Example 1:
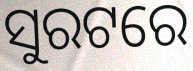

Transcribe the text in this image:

ସୁରଟରେ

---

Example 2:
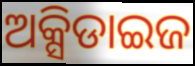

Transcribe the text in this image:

ଅକ୍ସିଡାଇଜ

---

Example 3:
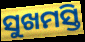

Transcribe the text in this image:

ସୁଖମସ୍ତି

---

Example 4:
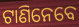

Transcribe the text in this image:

ଟାଣିନେବେ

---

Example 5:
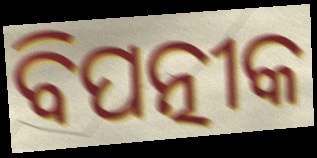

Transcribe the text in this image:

ବିପତ୍ନୀକ